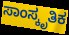
ಸಾಂಸ್ಕೃತಿಕ